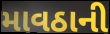
માવઠાની